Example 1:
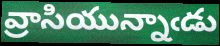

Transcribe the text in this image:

వ్రాసియున్నాఁడు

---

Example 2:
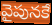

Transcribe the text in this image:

వైపునకే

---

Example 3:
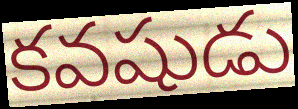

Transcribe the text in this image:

కవషుడు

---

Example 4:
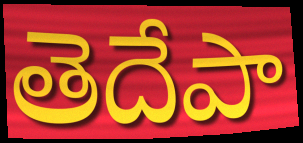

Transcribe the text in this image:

తెదేపా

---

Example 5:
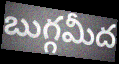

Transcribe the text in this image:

బుగ్గమీద